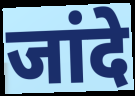
जांदे